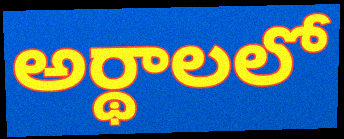
అర్థాలలో